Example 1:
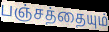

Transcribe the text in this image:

பஞ்சத்தையும்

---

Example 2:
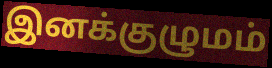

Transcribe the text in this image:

இனக்குழுமம்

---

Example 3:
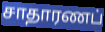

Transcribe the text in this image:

சாதாரணப்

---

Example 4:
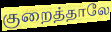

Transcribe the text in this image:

குறைத்தாலே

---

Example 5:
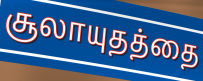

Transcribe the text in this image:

சூலாயுதத்தை